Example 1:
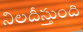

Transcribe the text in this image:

నిలదీస్తుంది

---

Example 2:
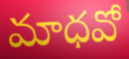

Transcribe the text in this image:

మాధవో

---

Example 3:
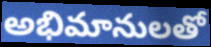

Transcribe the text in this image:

అభిమానులతో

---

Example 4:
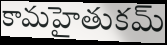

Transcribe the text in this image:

కామహైతుకమ్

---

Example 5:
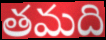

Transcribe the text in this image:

తమది